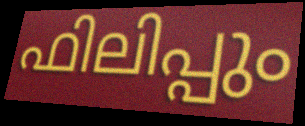
ഫിലിപ്പും